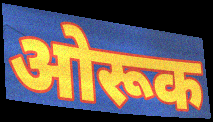
ओरूक